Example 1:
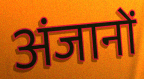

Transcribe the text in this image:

अंजानों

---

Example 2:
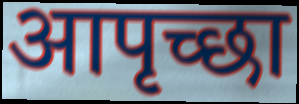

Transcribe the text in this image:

आपृच्छा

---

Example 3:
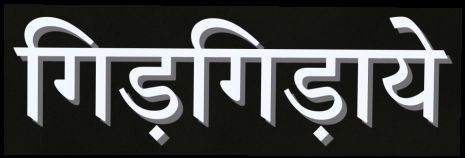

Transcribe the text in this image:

गिड़गिड़ाये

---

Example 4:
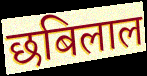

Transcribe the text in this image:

छबिलाल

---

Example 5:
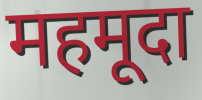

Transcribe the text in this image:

महमूदा